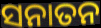
ସନାତନ